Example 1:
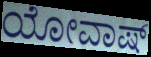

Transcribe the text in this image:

ಯೋವಾಷ್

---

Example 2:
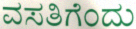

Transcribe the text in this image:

ವಸತಿಗೆಂದು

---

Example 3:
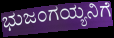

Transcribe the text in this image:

ಭುಜಂಗಯ್ಯನಿಗೆ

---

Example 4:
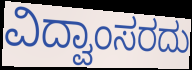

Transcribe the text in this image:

ವಿದ್ವಾಂಸರದು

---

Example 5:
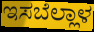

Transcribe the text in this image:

ಇಸಬೆಲ್ಲಾಳ